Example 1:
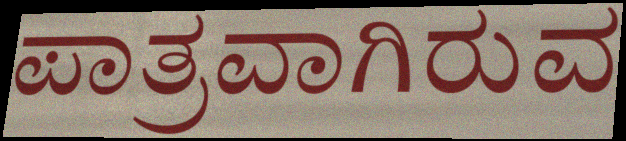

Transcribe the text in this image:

ಪಾತ್ರವಾಗಿರುವ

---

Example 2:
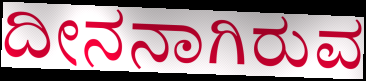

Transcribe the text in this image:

ದೀನನಾಗಿರುವ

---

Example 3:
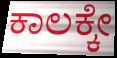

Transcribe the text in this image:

ಕಾಲಕ್ಕೇ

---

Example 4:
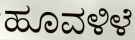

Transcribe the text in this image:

ಹೂವಳಿಳೆ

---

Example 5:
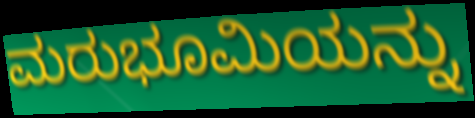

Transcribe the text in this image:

ಮರುಭೂಮಿಯನ್ನು